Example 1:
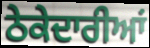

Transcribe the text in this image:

ਠੇਕੇਦਾਰੀਆਂ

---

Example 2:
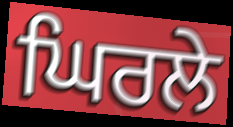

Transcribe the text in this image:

ਘਿਰਲੇ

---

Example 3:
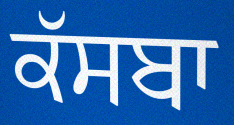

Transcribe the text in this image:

ਕੱਸਬਾ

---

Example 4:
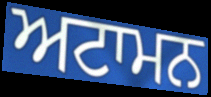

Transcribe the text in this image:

ਅਟਾਮਨ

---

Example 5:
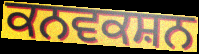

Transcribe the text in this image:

ਕਨਵਕਸ਼ਨ